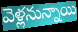
వెళ్లనున్నాయి